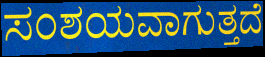
ಸಂಶಯವಾಗುತ್ತದೆ